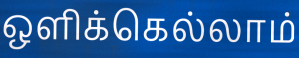
ஒளிக்கெல்லாம்